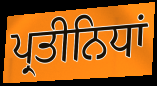
ਪ੍ਰਤੀਨਿਧਾਂ